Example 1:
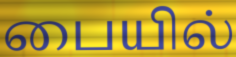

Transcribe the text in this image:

பையில்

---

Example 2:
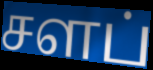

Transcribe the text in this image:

சளப்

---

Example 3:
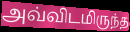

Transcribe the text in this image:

அவ்விடமிருந்த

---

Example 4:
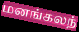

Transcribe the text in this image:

மனங்கலந்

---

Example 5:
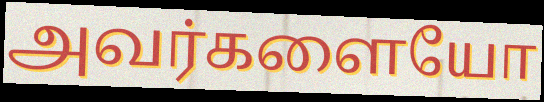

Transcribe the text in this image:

அவர்களையோ